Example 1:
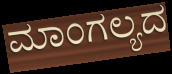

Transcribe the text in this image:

ಮಾಂಗಲ್ಯದ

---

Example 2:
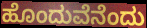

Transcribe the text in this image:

ಹೊಂದುವೆನೆಂದು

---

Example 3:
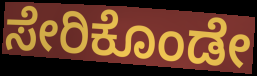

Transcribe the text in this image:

ಸೇರಿಕೊಂಡೇ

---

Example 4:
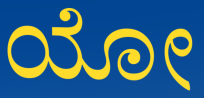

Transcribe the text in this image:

ಯೋ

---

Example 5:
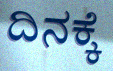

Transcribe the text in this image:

ದಿನಕ್ಕೆ